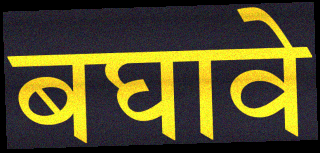
बघावे